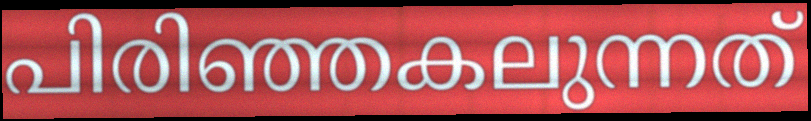
പിരിഞ്ഞകലുന്നത്